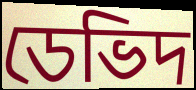
ডেভিদ